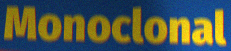
Monoclonal